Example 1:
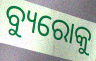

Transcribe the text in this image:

ବ୍ୟୁରୋକୁ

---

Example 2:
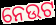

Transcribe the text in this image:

ନେଉଟ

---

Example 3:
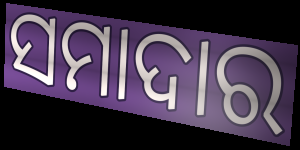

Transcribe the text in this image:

ସମାଦାର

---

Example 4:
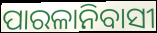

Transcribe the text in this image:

ପାରଳାନିବାସୀ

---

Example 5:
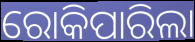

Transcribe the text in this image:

ରୋକିପାରିଲା